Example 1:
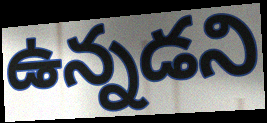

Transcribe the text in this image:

ఉన్నడని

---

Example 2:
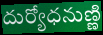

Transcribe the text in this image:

దుర్యోధనుణ్ణి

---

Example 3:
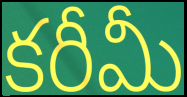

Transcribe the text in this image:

కరీమీ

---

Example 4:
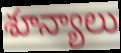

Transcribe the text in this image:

శూన్యాలు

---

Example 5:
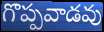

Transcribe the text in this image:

గొప్పవాడవు